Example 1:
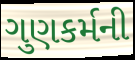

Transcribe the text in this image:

ગુણકર્મની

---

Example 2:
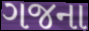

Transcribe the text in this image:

ગજના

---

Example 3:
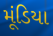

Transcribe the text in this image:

મૂંડિયા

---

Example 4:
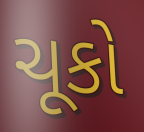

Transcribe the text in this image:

ચૂકો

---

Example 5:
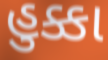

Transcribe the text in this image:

હુક્કા